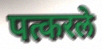
पत्करले